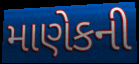
માણેકની